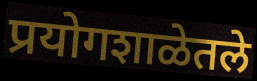
प्रयोगशाळेतले